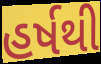
હર્ષથી